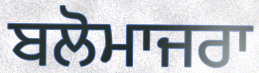
ਬਲੋਮਾਜਰਾ